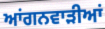
ਆਂਗਨਵਾੜੀਆਂ